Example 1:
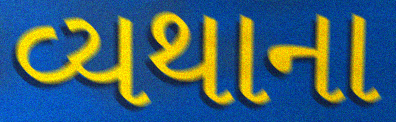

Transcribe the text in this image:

વ્યથાના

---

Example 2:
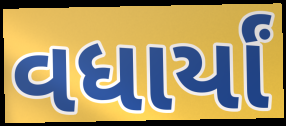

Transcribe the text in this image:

વધાર્યાં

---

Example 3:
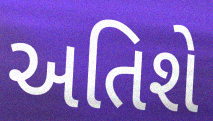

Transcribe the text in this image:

અતિશે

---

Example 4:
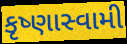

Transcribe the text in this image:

કૃષ્ણાસ્વામી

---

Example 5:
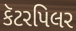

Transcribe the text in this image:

કૅટરપિલર